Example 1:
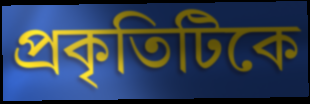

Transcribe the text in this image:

প্রকৃতিটিকে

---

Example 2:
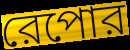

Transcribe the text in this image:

রেপোর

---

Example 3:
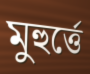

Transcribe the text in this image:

মুহুর্ত্তে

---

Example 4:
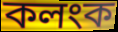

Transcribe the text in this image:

কলংক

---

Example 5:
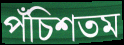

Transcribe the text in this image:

পঁচিশতম